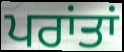
ਪਰਾਂਤਾਂ